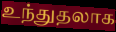
உந்துதலாக